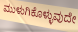
ಮುಳುಗಿಕೊಳ್ಳುವುದೇ